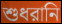
শুধরানি